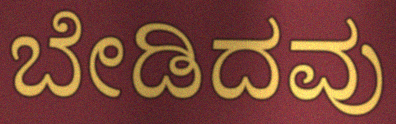
ಬೇಡಿದವು